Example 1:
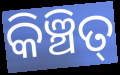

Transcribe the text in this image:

କିଞ୍ଚିତ୍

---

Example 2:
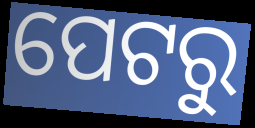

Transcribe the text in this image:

ପେଟରୁ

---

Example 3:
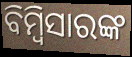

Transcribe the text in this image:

ବିମ୍ବିସାରଙ୍କ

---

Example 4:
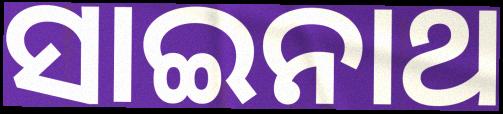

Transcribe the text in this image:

ସାଇନାଥ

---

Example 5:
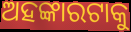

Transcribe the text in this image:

ଅହଙ୍କାରଟାକୁ